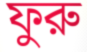
ফুরু